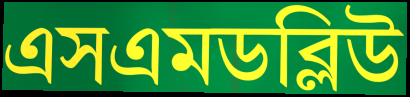
এসএমডব্লিউ